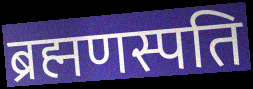
ब्रह्मणस्पति